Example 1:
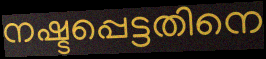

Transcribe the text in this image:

നഷ്ടപ്പെട്ടതിനെ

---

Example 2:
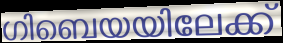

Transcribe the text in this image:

ഗിബെയയിലേക്ക്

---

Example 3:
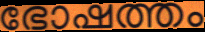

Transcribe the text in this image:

ഭോഷത്തം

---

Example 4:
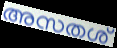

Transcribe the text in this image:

അസതശ്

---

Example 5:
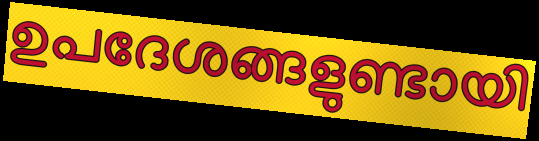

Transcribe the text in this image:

ഉപദേശങ്ങളുണ്ടായി